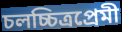
চলচ্চিত্রপ্রেমী